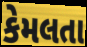
કેમલતા